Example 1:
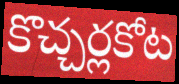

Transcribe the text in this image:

కొచ్చర్లకోట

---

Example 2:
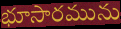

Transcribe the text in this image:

భూసారమును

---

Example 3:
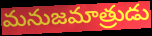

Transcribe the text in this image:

మనుజమాత్రుడు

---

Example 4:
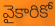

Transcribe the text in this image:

వైకారికో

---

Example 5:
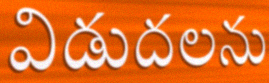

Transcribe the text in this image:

విడుదలను